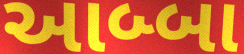
આબ્બા